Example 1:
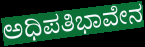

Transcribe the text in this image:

ಅಧಿಪತಿಭಾವೇನ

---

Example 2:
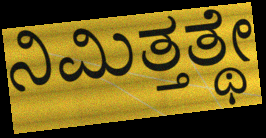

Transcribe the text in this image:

ನಿಮಿತ್ತತ್ಥೇ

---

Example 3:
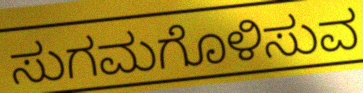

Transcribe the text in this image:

ಸುಗಮಗೊಳಿಸುವ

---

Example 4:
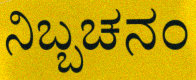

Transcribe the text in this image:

ನಿಬ್ಬಚನಂ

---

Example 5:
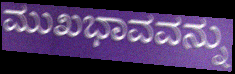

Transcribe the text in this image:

ಮುಖಭಾವವನ್ನು